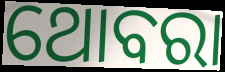
ଥୋବରା